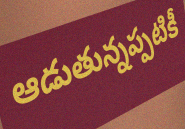
ఆడుతున్నప్పటికీ